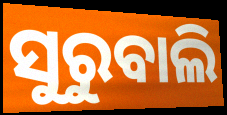
ସୁରୁବାଲି